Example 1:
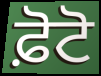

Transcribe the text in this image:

ਫ਼ੋਟੋ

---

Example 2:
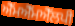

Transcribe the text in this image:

ਐੱਮਐੱਮਐੱਲਪੀ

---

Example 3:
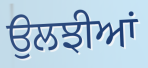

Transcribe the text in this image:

ਉਲਝੀਆਂ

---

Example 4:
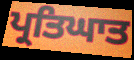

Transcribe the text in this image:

ਪ੍ਰਤਿਘਾਤ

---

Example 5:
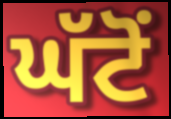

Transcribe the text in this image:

ਘੱਟੋਂ